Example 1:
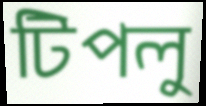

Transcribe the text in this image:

টিপলু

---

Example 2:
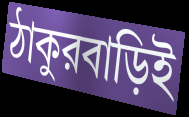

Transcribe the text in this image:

ঠাকুরবাড়িই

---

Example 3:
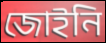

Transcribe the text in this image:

জোইনি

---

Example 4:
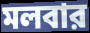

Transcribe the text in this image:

মলবার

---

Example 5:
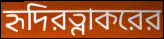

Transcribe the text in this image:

হৃদিরত্নাকরের